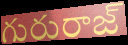
గురురాజ్